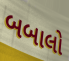
બબાલો